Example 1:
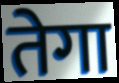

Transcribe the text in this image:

तेगा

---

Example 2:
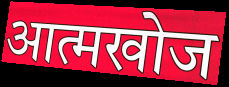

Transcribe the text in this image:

आत्मखोज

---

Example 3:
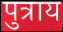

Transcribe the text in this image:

पुत्राय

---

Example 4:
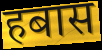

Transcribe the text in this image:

हबास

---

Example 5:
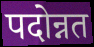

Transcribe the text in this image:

पदोन्नत